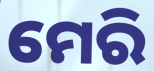
ମେରି